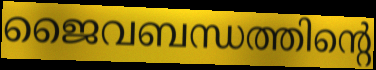
ജൈവബന്ധത്തിന്റെ